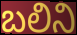
బలిని